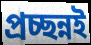
প্রচ্ছন্নই